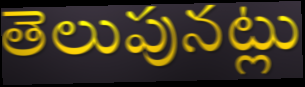
తెలుపునట్లు